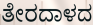
ತೇರದಾಳದ